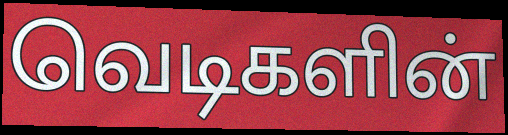
வெடிகளின்